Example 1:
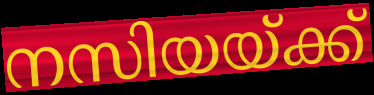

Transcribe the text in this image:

നസിയയ്ക്ക്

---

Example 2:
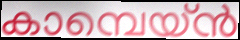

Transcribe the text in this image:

കാമ്പെയ്ൻ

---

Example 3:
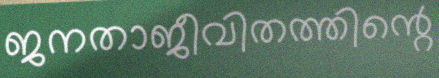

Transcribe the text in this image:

ജനതാജീവിതത്തിന്റെ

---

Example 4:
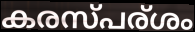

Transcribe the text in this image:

കരസ്പര്ശം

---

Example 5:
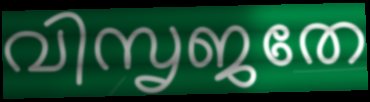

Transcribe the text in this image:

വിസൃജതേ